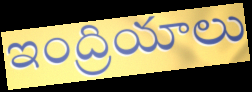
ఇంద్రియాలు